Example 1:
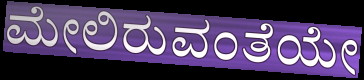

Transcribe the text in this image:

ಮೇಲಿರುವಂತೆಯೇ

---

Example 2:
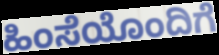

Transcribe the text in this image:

ಹಿಂಸೆಯೊಂದಿಗೆ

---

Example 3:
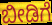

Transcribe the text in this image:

ಬೀಡಿಗೆ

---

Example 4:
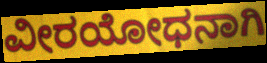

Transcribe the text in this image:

ವೀರಯೋಧನಾಗಿ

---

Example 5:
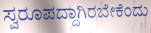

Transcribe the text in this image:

ಸ್ವರೂಪದ್ದಾಗಿರಬೇಕೆಂದು